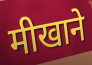
मीखाने